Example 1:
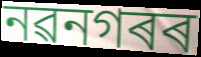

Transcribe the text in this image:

নৱনগৰৰ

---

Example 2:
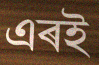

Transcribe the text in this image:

এৰই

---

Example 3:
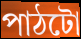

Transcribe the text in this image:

পাঠটো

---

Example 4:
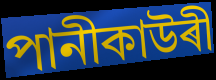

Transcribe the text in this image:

পানীকাউৰী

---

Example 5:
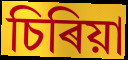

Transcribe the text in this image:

চিৰিয়া